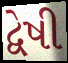
દ્વેષી